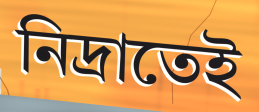
নিদ্রাতেই